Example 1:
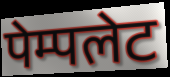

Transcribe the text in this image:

पेम्पलेट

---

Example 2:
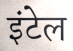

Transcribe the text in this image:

इंटेल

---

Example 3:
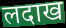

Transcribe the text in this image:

लदाख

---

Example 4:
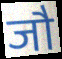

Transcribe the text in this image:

जौ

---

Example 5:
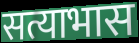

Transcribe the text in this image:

सत्याभास